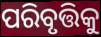
ପରିବୃତ୍ତିକୁ